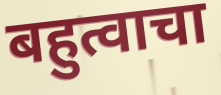
बहुत्वाचा